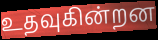
உதவுகின்றன